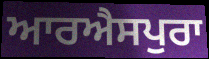
ਆਰਐਸਪੁਰਾ